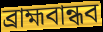
ব্রাহ্মবান্ধব